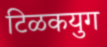
टिळकयुग